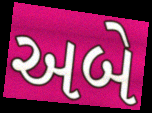
અબે